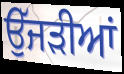
ਉੱਜੜੀਆਂ